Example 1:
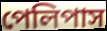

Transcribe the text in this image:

পেলিপাস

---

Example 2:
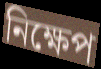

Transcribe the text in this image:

নিক্ষেপ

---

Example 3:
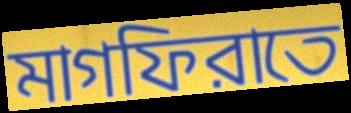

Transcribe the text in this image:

মাগফিরাতে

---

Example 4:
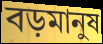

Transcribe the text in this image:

বড়মানুষ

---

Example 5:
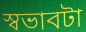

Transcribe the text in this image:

স্বভাবটা